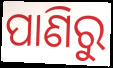
ପାଣିରୁ